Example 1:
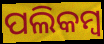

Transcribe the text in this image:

ପଲିକମ୍ବ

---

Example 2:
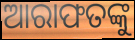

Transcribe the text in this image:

ଆରାଫତଙ୍କୁ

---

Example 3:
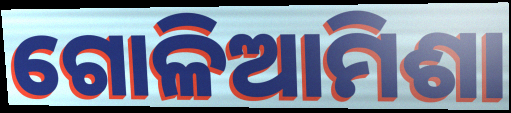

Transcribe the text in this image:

ଗୋଳିଆମିଶା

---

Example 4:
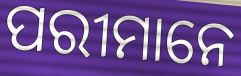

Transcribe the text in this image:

ପରୀମାନେ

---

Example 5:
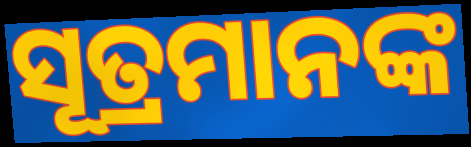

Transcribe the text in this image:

ସୂତ୍ରମାନଙ୍କ